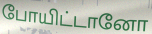
போயிட்டானோ